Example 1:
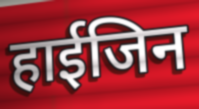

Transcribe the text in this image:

हाईजिन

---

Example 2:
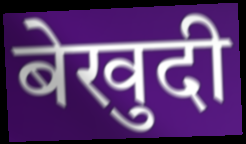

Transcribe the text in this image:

बेखुदी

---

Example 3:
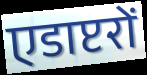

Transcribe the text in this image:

एडाप्टरों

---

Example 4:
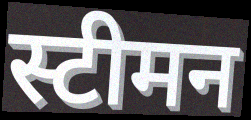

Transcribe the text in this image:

स्टीमन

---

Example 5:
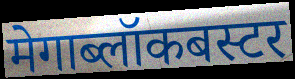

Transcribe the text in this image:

मेगाब्लॉकबस्टर